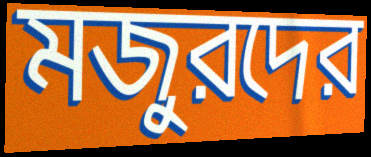
মজুরদের